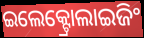
ଇଲେକ୍ଟ୍ରୋଲାଇଜିଂ